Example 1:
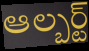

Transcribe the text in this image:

ఆల్బర్ట్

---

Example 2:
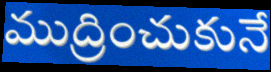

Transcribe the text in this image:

ముద్రించుకునే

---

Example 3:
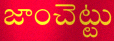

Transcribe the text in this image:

జాంచెట్టు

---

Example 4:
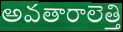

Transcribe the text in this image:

అవతారాలెత్తి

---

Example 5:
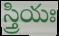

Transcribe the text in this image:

స్త్రియః